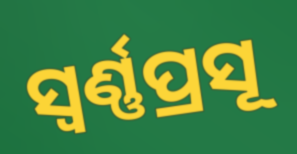
ସ୍ୱର୍ଣ୍ଣପ୍ରସୂ